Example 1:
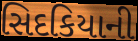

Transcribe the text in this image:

સિદકિયાની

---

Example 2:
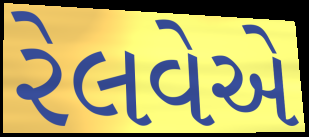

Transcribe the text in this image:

રેલવેએ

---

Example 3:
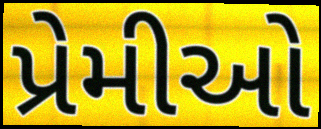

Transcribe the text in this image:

પ્રેમીઓ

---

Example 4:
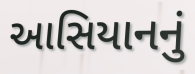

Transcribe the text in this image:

આસિયાનનું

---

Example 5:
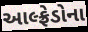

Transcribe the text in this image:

આલ્ફ્રેડોના